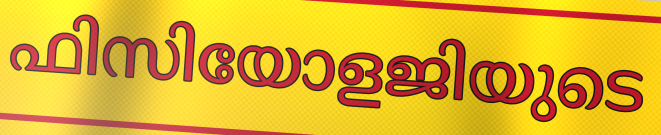
ഫിസിയോളജിയുടെ